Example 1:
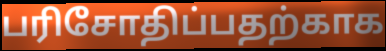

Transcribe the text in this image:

பரிசோதிப்பதற்காக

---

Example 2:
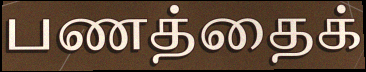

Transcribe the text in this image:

பணத்தைக்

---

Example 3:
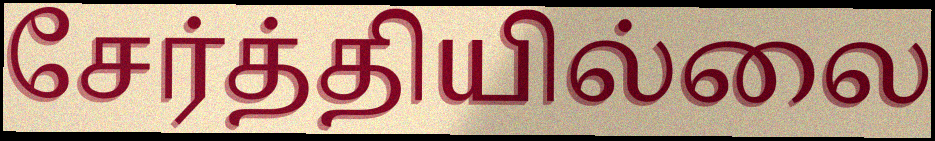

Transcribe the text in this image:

சேர்த்தியில்லை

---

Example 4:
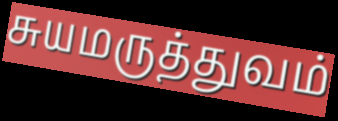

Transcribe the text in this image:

சுயமருத்துவம்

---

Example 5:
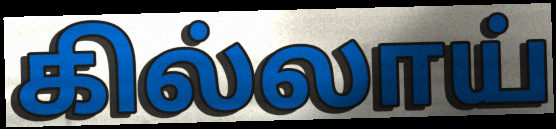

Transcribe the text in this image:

கில்லாய்